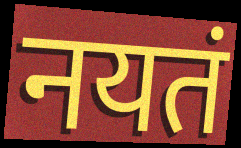
नयतं